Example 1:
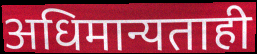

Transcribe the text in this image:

अधिमान्यताही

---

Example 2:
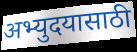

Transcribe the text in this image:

अभ्युदयासाठी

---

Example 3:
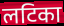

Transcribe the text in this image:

लटिका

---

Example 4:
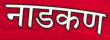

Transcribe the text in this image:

नाडकण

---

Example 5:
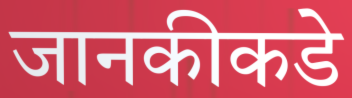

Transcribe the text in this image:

जानकीकडे